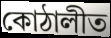
কোঠালীত